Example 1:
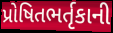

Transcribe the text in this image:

પ્રોષિતભર્તૃકાની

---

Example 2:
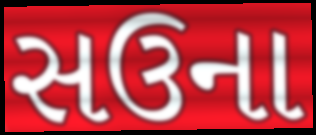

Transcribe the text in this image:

સઉના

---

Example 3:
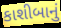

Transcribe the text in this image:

કાશીબાનું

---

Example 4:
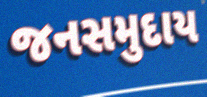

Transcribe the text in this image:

જનસમુદાય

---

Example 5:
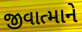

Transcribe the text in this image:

જીવાત્માને